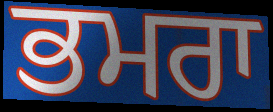
ਭਮਰਾ